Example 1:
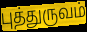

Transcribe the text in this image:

புத்துருவம்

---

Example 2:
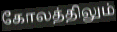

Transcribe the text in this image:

கோலத்திலும்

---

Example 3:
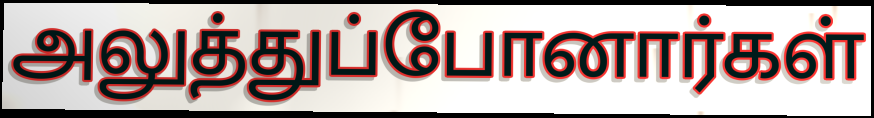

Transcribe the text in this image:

அலுத்துப்போனார்கள்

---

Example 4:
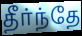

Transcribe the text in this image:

தீர்ந்தே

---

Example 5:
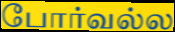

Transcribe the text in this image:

போர்வல்ல